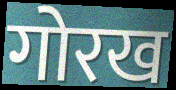
गोरख